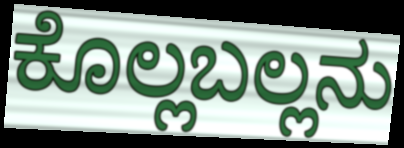
ಕೊಲ್ಲಬಲ್ಲನು